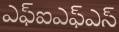
ఎఫ్ఐఎఫ్ఎస్